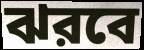
ঝরবে